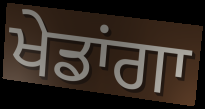
ਖੇਡਾਂਗਾ